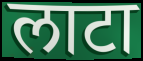
लाटा